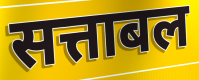
सत्ताबल